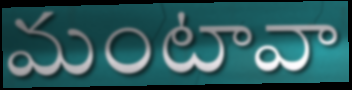
మంటావా